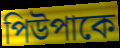
পিউপাকে